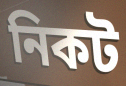
নিকট